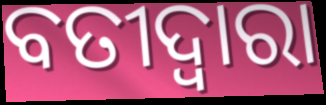
ବତୀଦ୍ୱାରା